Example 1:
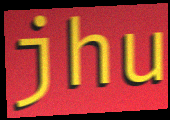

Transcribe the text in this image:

jhu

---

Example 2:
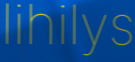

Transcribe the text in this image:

lihilys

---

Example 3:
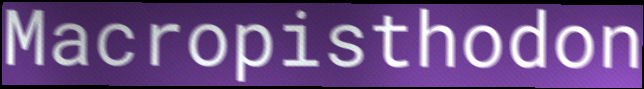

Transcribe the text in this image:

Macropisthodon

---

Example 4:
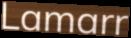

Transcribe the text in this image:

Lamarr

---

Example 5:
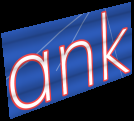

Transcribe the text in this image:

ank